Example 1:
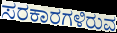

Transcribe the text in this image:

ಸರಕಾರಗಳಿರುವ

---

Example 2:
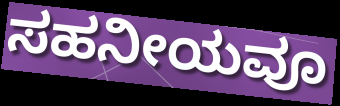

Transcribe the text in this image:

ಸಹನೀಯವೂ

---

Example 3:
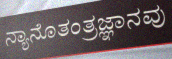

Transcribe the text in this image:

ನ್ಯಾನೊತಂತ್ರಜ್ಞಾನವು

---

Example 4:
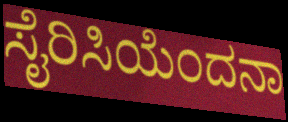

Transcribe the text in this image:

ಸೈರಿಸಿಯೆಂದನಾ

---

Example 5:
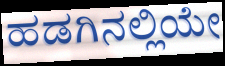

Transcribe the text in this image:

ಹಡಗಿನಲ್ಲಿಯೇ